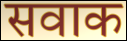
सवाक